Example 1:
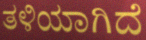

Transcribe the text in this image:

ತಳಿಯಾಗಿದೆ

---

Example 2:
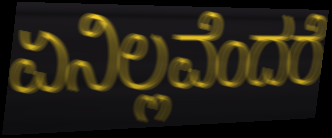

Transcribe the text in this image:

ಏನಿಲ್ಲವೆಂದರೆ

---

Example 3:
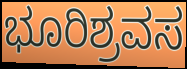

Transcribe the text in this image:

ಭೂರಿಶ್ರವಸ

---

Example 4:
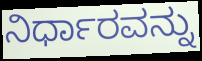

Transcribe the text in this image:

ನಿರ್ಧಾರವನ್ನು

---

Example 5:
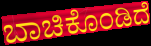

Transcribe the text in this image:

ಬಾಚಿಕೊಂಡಿದೆ